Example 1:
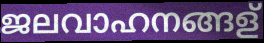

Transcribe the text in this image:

ജലവാഹനങ്ങള്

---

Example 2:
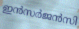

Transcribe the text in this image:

ഇൻസർജൻസി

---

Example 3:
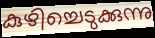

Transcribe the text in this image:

കുഴിച്ചെടുക്കുന്നു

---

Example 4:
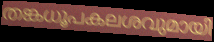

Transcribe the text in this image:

തങ്കധൂപകലശവുമായി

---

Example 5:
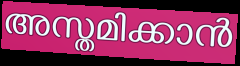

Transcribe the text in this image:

അസ്തമിക്കാൻ